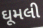
ઘૂમલી